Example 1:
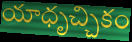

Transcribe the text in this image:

యాధృచ్చికం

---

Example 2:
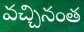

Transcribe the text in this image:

వచ్చినంత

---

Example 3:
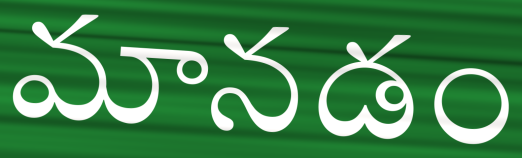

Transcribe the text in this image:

మానడం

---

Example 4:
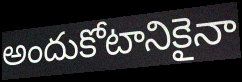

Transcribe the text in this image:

అందుకోటానికైనా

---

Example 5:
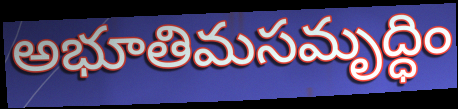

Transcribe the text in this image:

అభూతిమసమృద్ధిం